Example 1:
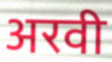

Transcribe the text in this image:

अरवी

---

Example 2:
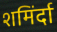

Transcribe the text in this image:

शमिंर्दा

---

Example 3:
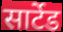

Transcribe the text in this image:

सार्टेड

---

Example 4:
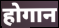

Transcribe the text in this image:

होगान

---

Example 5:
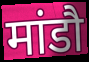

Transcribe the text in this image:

मांडौ